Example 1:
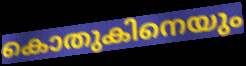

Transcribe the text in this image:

കൊതുകിനെയും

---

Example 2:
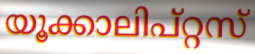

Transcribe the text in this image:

യൂക്കാലിപ്റ്റസ്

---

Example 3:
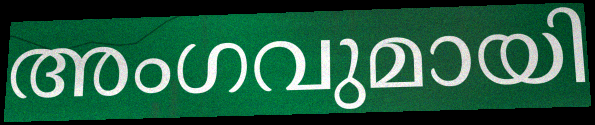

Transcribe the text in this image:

അംഗവുമായി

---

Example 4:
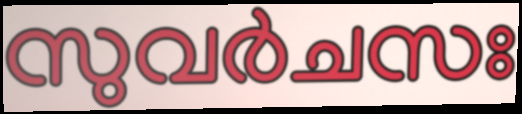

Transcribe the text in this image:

സുവർചസഃ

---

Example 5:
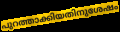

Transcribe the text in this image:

പുറത്താക്കിയതിനുശേഷം